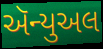
ઍન્યુઅલ